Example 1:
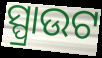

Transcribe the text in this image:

ସ୍ପ୍ରାଉଟ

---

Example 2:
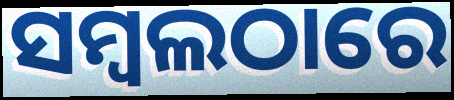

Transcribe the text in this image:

ସମ୍ବଲଠାରେ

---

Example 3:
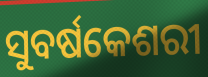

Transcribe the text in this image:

ସୁବର୍ଷକେଶରୀ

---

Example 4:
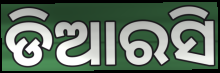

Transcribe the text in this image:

ଡିଆରସି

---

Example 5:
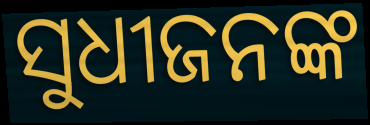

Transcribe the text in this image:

ସୁଧୀଜନଙ୍କ